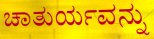
ಚಾತುರ್ಯವನ್ನು